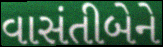
વાસંતીબેને